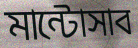
মান্টোসাব